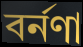
বর্নণা